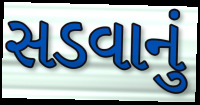
સડવાનું